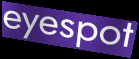
eyespot